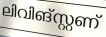
ലിവിങ്സ്റ്റണ്